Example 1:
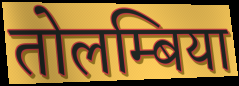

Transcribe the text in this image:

तोलम्बिया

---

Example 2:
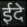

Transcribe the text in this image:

ईदे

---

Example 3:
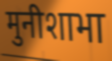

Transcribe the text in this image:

मुनीशाभा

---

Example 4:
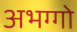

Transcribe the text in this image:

अभग्गो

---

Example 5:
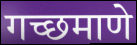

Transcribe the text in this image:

गच्छमाणे